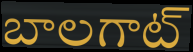
బాలగాట్